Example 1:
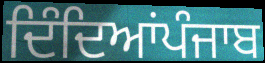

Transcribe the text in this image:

ਦਿੰਦਿਆਂਪੰਜਾਬ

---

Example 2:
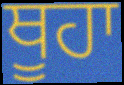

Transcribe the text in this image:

ਥੂਹਾ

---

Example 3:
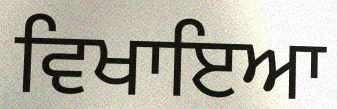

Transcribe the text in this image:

ਵਿਖਾਇਆ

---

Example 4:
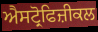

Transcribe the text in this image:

ਐਸਟ੍ਰੋਫਿਜ਼ੀਕਲ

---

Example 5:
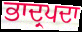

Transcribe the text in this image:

ਭਾਦ੍ਰਪਦਾ